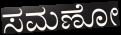
ಸಮಣೋ